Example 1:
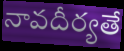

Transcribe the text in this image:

నావదీర్యతే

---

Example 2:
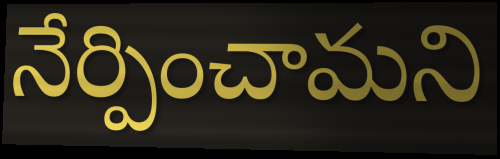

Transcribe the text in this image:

నేర్పించామని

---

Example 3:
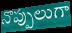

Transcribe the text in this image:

నొప్పులుగా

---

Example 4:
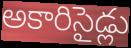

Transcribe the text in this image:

అకారిసైడ్లు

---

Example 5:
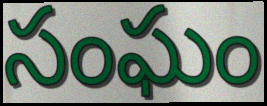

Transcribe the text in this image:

సంఘం